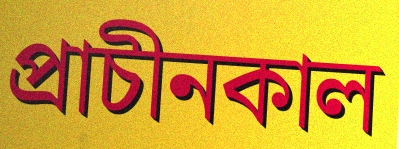
প্রাচীনকাল